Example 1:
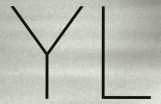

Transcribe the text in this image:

YL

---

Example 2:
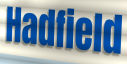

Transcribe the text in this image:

Hadfield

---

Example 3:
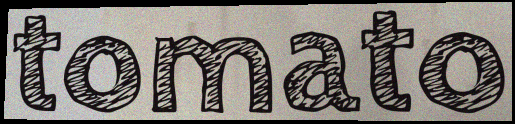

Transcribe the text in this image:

tomato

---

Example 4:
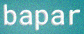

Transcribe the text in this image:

bapar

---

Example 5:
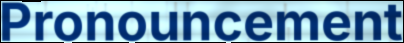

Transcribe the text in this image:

Pronouncement